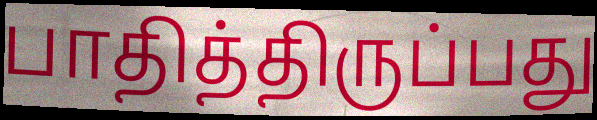
பாதித்திருப்பது